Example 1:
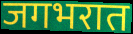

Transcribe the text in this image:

जगभरात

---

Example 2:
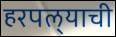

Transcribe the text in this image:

हरपल्याची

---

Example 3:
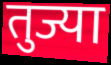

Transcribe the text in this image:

तुज्या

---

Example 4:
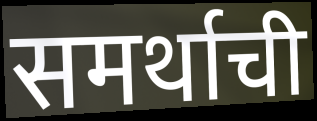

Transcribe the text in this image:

समर्थाची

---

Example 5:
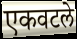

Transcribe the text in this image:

एकवटले